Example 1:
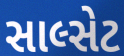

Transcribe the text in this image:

સાલ્સેટ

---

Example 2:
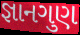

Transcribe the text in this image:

જ્ઞાનગુણ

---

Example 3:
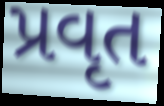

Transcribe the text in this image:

પ્રવૃત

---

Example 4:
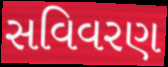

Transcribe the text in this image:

સવિવરણ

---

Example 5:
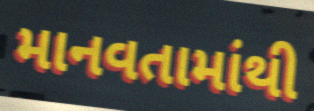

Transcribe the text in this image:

માનવતામાંથી